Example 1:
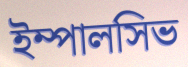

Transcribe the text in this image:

ইম্পালসিভ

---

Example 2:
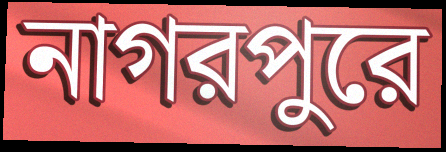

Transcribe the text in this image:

নাগরপুরে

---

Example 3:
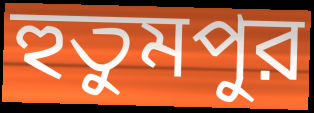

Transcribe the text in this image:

হুতুমপুর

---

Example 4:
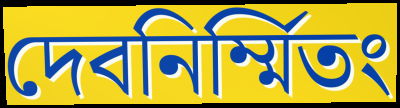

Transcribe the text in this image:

দেবনির্ম্মিতং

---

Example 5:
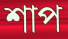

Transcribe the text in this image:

শাপ